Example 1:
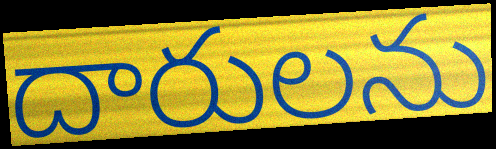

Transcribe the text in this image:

దారులను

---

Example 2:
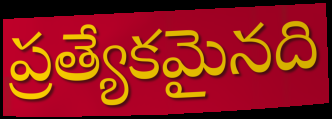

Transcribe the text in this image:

ప్రత్యేకమైనది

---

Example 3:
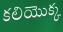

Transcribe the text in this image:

కలియొక్క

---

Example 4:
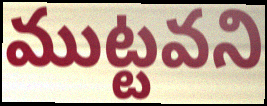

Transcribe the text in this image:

ముట్టవని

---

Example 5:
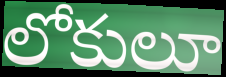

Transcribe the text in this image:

లోకులూ